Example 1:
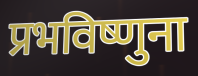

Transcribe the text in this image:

प्रभविष्णुना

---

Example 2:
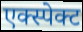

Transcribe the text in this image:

एक्स्पेक्ट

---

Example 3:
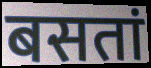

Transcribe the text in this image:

बसतां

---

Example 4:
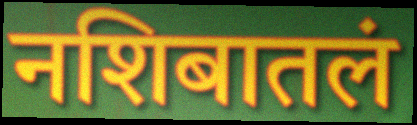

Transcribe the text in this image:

नशिबातलं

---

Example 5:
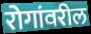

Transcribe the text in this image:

रोगांवरील